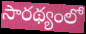
సారథ్యంలో